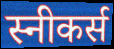
स्नीकर्स